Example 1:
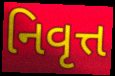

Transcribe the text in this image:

નિવૃત્ત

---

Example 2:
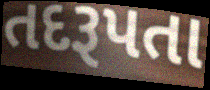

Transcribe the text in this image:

તદરૂપતા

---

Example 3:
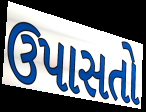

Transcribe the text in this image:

ઉપાસતો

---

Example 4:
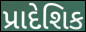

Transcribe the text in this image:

પ્રાદેશિક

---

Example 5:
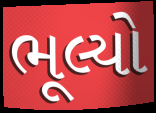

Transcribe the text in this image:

ભૂલ્યો